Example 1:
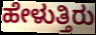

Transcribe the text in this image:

ಹೇಳುತ್ತಿರು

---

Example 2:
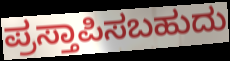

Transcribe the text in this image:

ಪ್ರಸ್ತಾಪಿಸಬಹುದು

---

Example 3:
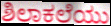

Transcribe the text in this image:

ಶಿಲಾಕಲೆಯು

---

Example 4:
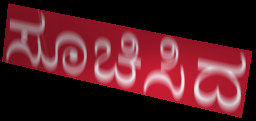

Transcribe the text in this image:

ಸೂಚಿಸಿದ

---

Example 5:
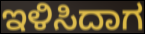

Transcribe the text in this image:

ಇಳಿಸಿದಾಗ